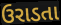
ઉરાડતા